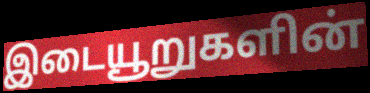
இடையூறுகளின்